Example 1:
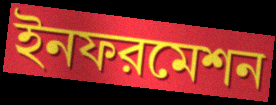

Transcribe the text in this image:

ইনফরমেশন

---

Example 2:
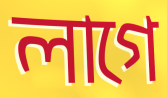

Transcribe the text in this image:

লাগে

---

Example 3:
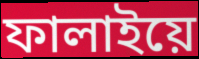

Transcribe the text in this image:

ফালাইয়ে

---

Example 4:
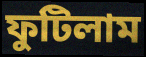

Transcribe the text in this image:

ফুটিলাম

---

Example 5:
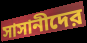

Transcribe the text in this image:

সাসানীদের